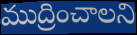
ముద్రించాలని